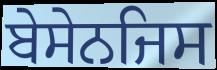
ਬੇਸੇਨਜਿਸ